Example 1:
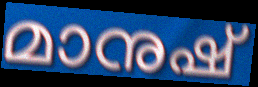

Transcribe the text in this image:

മാനുഷ്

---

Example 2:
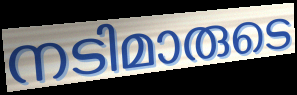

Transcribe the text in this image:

നടിമാരുടെ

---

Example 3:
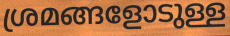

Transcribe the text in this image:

ശ്രമങ്ങളോടുള്ള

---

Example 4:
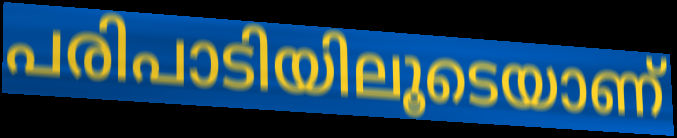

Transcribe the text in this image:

പരിപാടിയിലൂടെയാണ്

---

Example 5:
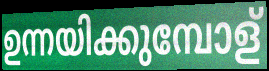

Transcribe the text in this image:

ഉന്നയിക്കുമ്പോള്